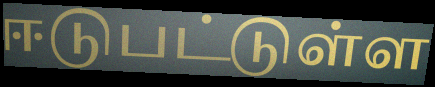
ஈடுபட்டுள்ள